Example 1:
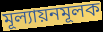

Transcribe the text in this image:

মূল্যায়নমূলক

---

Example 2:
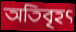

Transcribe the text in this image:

অতিবৃহৎ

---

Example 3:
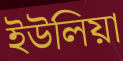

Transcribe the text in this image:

ইউলিয়া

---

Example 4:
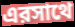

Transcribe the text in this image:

এরসাথে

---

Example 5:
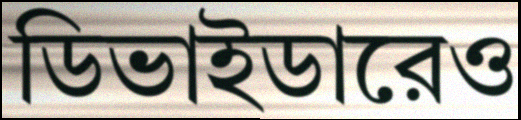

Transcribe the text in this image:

ডিভাইডারেও